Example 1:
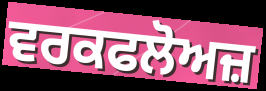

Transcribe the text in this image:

ਵਰਕਫਲੋਅਜ਼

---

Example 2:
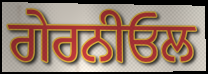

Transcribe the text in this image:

ਗੇਰਨੀਓਲ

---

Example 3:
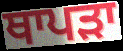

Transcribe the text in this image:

ਥਾਪੜਾ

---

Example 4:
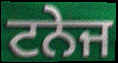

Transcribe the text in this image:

ਟਨੇਜ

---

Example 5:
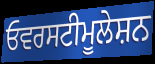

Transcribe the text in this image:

ਓਵਰਸਟੀਮੂਲੇਸ਼ਨ